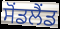
ਸੋਂਡਲੈਂਡ